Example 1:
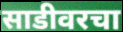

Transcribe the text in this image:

साडीवरचा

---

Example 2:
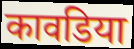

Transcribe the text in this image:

कावडिया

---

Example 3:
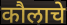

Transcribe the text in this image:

कौलाचे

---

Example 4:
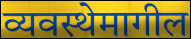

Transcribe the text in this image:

व्यवस्थेमागील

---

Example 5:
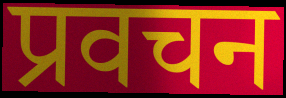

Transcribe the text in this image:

प्रवचन